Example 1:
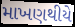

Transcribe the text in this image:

માખણથીયે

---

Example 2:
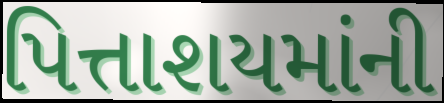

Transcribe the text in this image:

પિત્તાશયમાંની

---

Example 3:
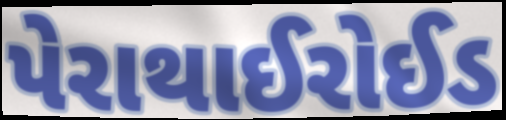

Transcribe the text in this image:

પેરાથાઈરોઈડ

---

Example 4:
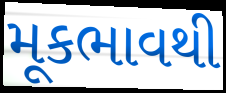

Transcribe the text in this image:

મૂકભાવથી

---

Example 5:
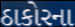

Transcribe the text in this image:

ઠાકોરના